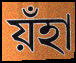
য়ঁহা